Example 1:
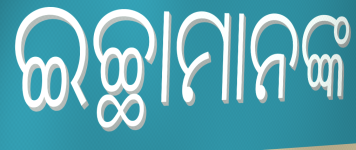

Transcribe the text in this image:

ଇଚ୍ଛାମାନଙ୍କ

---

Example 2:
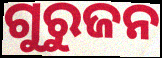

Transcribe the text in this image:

ଗୁରୁଜନ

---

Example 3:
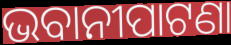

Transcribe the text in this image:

ଭବାନୀପାଟଣା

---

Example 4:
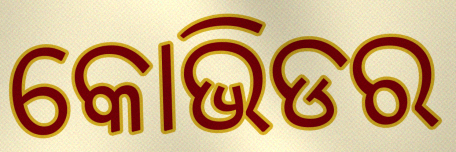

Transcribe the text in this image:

କୋଭିଡର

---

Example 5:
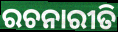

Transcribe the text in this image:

ରଚନାରୀତି